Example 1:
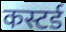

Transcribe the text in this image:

कस्टर्ड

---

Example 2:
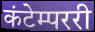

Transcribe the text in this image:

कंटेम्पररी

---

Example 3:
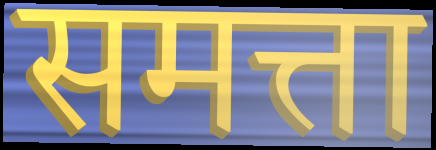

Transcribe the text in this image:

समत्ता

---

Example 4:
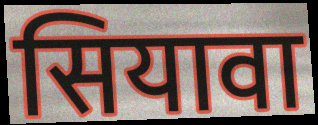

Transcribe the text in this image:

सियावा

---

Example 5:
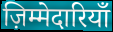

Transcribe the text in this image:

ज़िम्मेदारियाँ